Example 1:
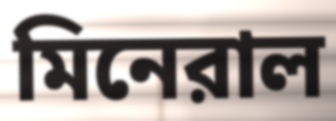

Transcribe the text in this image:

মিনেরাল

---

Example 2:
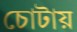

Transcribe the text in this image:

চোটায়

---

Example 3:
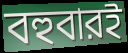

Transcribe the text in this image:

বহুবারই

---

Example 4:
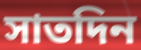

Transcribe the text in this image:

সাতদিন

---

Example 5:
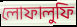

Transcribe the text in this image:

লোফালুফি